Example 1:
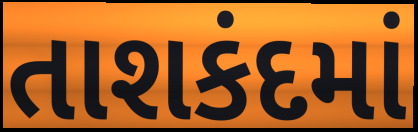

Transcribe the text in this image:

તાશકંદમાં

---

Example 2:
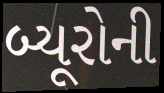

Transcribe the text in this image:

બ્યૂરોની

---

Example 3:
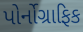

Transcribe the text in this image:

પોર્નોગ્રાફિક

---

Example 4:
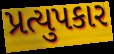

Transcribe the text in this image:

પ્રત્યુપકાર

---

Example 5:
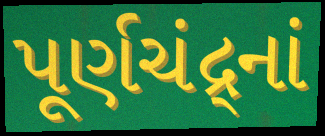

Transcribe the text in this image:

પૂર્ણચંદ્ર્નાં